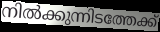
നിൽക്കുന്നിടത്തേക്ക്